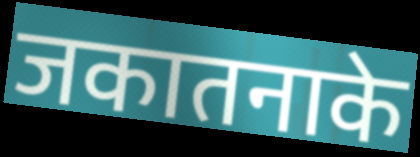
जकातनाके